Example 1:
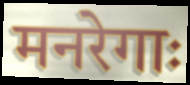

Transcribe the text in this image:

मनरेगाः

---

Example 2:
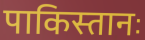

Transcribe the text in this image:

पाकिस्तानः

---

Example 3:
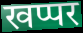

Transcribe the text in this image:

खप्पर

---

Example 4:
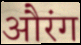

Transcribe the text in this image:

औरंग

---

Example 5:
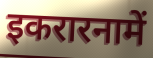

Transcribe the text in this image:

इकरारनामें